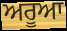
ਅਰੂਆ